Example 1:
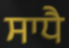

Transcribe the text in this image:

ਸਾਧੈ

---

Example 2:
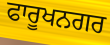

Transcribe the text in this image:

ਫਾਰੂਖਨਗਰ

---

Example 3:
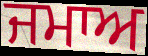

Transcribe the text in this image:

ਜਮਾਅ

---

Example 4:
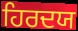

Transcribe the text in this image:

ਹਿਰਦਯ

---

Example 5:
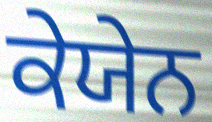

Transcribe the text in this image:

ਕੇਯੇਨ